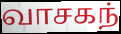
வாசகந்